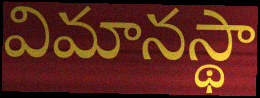
విమానస్థా